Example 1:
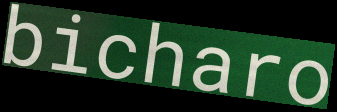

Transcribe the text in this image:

bicharo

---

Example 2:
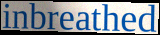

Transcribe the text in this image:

inbreathed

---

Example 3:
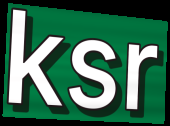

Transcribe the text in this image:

ksr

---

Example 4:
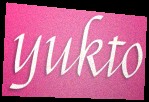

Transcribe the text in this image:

yukto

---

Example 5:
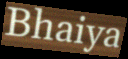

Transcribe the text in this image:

Bhaiya